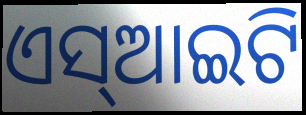
ଏସ୍ଆଇଟି